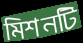
মিশনটি